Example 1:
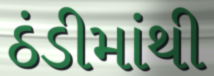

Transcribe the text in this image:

ઠંડીમાંથી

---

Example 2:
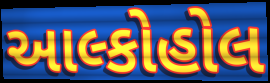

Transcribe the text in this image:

આલ્કોહોલ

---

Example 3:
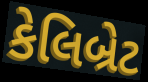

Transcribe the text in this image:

કેલિબ્રેટ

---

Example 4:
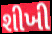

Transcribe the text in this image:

શીખી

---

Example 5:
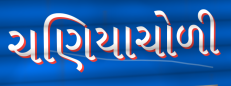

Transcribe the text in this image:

ચણિયાચોળી